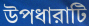
উপধারাটি